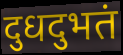
दुधदुभतं